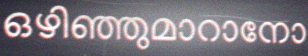
ഒഴിഞ്ഞുമാറാനോ